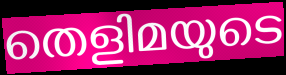
തെളിമയുടെ